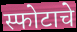
स्फोटाचे